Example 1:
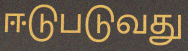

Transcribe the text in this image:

ஈடுபடுவது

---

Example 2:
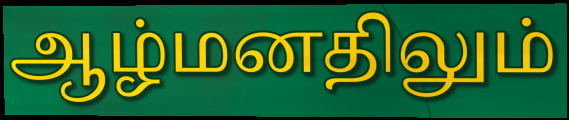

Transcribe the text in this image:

ஆழ்மனதிலும்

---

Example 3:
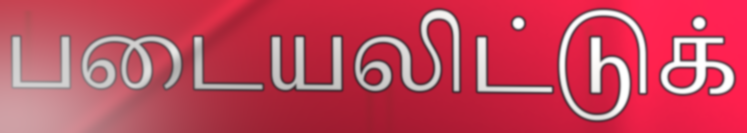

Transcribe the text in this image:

படையலிட்டுக்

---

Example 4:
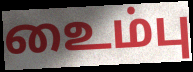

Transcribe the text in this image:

உைம்பு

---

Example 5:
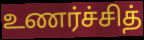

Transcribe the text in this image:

உணர்ச்சித்